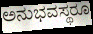
ಅನುಭವಸ್ಥರೂ